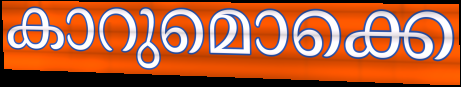
കാറുമൊക്കെ